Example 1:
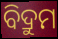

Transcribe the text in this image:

ବିଦ୍ରୁମ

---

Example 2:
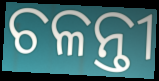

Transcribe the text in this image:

ଚଳନ୍ତୀ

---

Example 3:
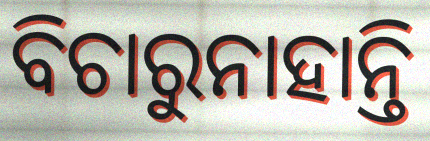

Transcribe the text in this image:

ବିଚାରୁନାହାନ୍ତି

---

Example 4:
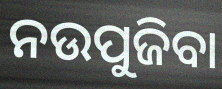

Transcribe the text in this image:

ନଉପୁଜିବା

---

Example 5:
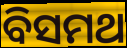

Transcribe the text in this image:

ବିସମଥ